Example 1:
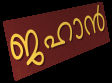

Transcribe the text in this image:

ജഹാൻ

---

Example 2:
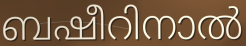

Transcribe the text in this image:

ബഷീറിനാൽ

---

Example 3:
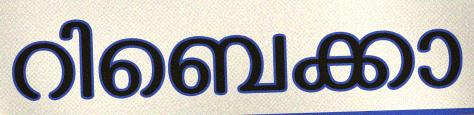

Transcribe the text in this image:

റിബെക്കാ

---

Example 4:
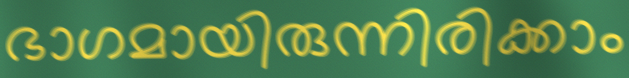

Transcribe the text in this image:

ഭാഗമായിരുന്നിരിക്കാം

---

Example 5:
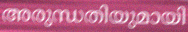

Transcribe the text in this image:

അരുന്ധതിയുമായി